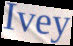
Ivey